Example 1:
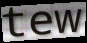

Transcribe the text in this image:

tew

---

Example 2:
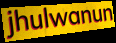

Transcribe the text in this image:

jhulwanun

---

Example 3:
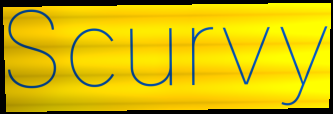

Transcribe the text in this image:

Scurvy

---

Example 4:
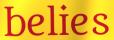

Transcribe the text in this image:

belies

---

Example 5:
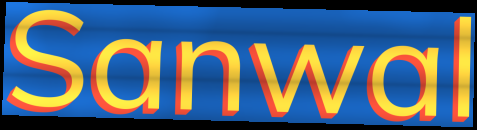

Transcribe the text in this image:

Sanwal